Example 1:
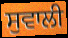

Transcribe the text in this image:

ਸੁਵਾਲੀ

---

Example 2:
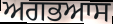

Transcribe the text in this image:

ਅਗਭਆਸ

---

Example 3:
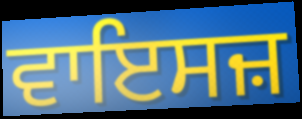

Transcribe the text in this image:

ਵਾਇਸਜ਼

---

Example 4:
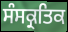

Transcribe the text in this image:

ਸੰਸਕ੍ਰਤਿਕ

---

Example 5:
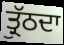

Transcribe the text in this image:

ਤ੍ਰੁੱਠਦਾ